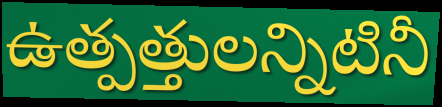
ఉత్పత్తులన్నిటినీ